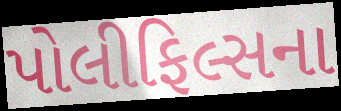
પોલીફિલ્સના